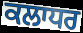
ਕਲਾਧਰ